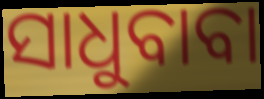
ସାଧୁବାବା